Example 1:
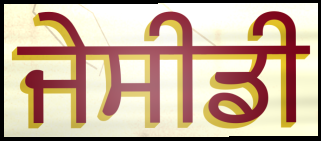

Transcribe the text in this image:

ਜੇਸੀਡੀ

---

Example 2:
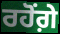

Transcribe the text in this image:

ਰਹੋਂਗ਼ੇ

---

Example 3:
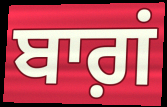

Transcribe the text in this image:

ਬਾਗ਼ਂ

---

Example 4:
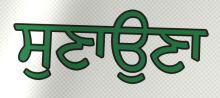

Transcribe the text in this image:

ਸੁਣਾਉਣਾ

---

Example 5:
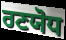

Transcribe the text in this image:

ਰਣਯੋਧ